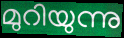
മുറിയുന്നു